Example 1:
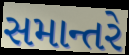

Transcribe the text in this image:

સમાન્તરે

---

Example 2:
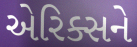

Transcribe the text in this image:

એરિક્સને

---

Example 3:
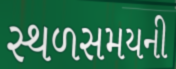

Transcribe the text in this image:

સ્થળસમયની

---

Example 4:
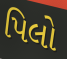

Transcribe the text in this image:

પિલો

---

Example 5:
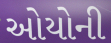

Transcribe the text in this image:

ઓયોની